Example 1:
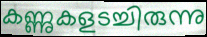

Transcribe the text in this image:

കണ്ണുകളടച്ചിരുന്നു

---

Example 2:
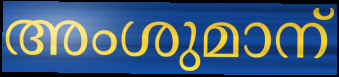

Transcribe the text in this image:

അംശുമാന്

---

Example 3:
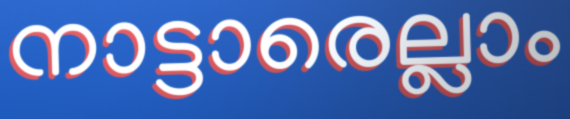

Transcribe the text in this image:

നാട്ടാരെല്ലാം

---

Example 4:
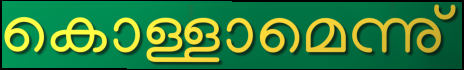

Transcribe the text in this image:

കൊള്ളാമെന്നു്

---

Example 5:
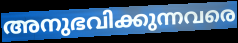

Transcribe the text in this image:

അനുഭവിക്കുന്നവരെ